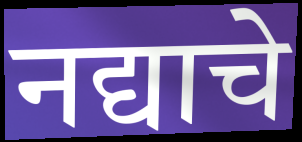
नद्याचे